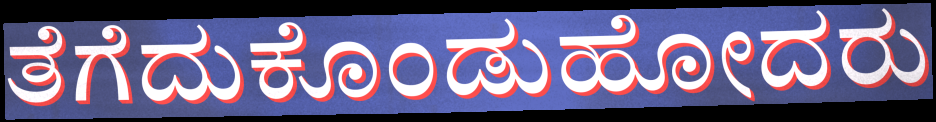
ತೆಗೆದುಕೊಂಡುಹೋದರು